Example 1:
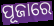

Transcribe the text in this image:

ପୂଜାରେ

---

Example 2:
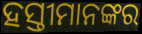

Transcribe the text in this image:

ହସ୍ତୀମାନଙ୍କର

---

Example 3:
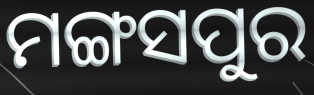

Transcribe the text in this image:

ମଙ୍ଗସପୁର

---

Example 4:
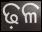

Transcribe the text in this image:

ଢ଼ଳ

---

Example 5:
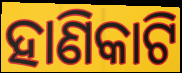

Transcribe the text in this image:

ହାଣିକାଟି